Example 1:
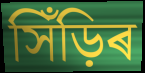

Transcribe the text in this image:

সিঁড়িৰ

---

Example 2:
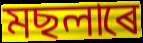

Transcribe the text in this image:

মছলাৰে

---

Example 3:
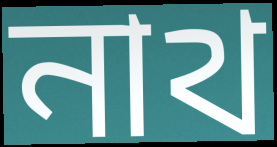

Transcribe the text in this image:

নাথ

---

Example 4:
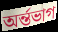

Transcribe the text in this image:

অৰ্ন্তভাগ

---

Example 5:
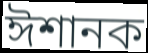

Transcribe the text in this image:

ঈশানক